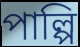
পাল্পি